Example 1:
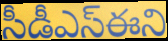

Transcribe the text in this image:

సీడీఎస్ఈని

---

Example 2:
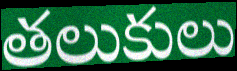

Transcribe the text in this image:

తలుకులు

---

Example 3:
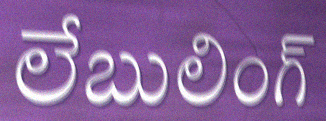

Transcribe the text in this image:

లేబులింగ్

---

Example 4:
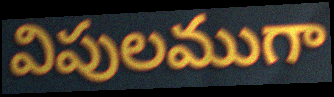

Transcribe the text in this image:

విపులముగా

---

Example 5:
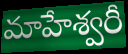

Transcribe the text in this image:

మాహేశ్వరీ